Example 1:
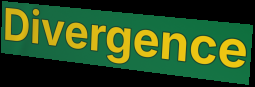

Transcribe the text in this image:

Divergence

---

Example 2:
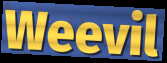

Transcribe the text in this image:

Weevil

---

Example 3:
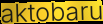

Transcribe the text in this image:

aktobaru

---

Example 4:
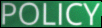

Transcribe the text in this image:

POLICY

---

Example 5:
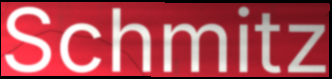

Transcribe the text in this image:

Schmitz